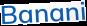
Banani